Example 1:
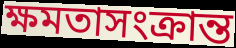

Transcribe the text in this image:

ক্ষমতাসংক্রান্ত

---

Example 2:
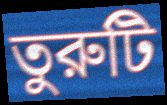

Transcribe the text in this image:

তুরুটি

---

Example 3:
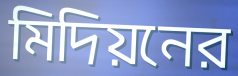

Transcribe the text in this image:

মিদিয়নের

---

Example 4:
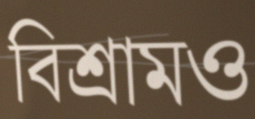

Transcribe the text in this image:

বিশ্রামও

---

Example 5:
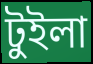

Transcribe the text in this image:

টুইলা